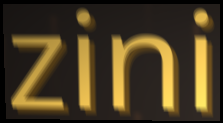
zini